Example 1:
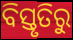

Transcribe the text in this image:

ବିସ୍ତୃତିରୁ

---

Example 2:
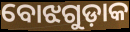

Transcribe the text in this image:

ବୋଝଗୁଡ଼ାକ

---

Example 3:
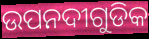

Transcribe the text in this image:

ଉପନଦୀଗୁଡିକ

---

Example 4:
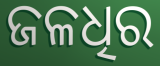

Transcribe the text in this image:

ଜଳଧିର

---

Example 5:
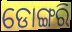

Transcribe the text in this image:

ଡୋଙ୍ଗରି